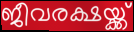
ജീവരക്ഷയ്ക്ക്